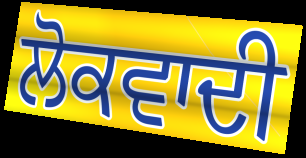
ਲੋਕਵਾਦੀ